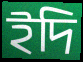
ইদি